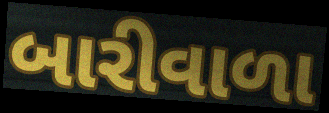
બારીવાળા